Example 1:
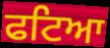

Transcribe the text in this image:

ਫਟਿਆ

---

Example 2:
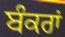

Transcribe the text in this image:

ਬੰਕਰਾਂ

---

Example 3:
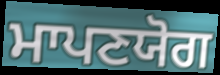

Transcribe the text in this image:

ਮਾਪਣਯੋਗ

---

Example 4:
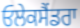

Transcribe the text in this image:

ਓਲੇਕਸੈਂਡਰਾ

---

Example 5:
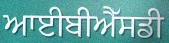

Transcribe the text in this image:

ਆਈਬੀਐੱਸਡੀ